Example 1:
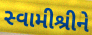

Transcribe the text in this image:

સ્વામીશ્રીને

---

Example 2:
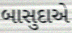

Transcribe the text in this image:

બાસુદાએ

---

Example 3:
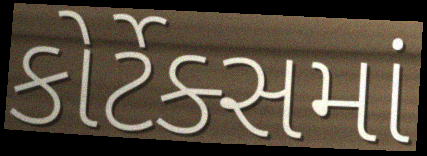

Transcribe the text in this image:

કોર્ટેક્સમાં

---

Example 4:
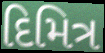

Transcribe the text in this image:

દિમિત્ર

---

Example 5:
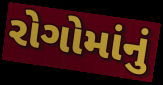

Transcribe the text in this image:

રોગોમાંનું